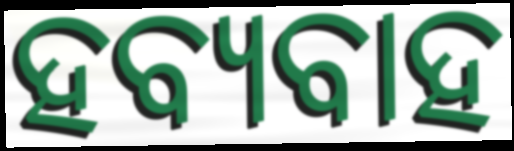
ହବ୍ୟବାହ